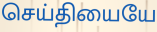
செய்தியையே